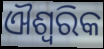
ଐଶ୍ବରିକ